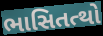
ભાસિતત્થો